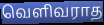
வெளிவராத